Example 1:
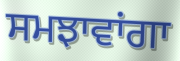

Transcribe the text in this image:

ਸਮਝਾਵਾਂਗਾ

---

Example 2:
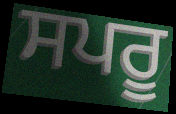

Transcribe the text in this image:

ਸਪਰੂ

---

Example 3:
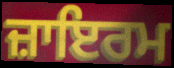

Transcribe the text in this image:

ਜ਼ਾਇਰਮ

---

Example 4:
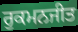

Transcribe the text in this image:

ਰੁਕਮਨਜੀਤ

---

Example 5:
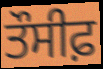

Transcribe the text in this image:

ਤੌਸੀਫ਼